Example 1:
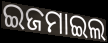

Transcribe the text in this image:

ଇଜମାଇଲ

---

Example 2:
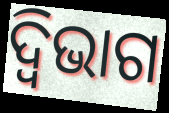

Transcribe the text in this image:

ଦ୍ୱିଭାଗ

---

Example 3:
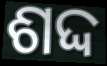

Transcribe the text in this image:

ଶଦ୍ଦ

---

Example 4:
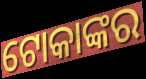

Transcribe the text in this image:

ଟୋକାଙ୍କର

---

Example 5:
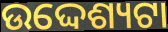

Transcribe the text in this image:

ଉଦ୍ଦେଶ୍ୟଟା